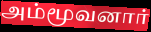
அம்மூவனார்